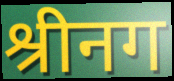
श्रीनग